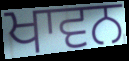
ਖਾਵਨ